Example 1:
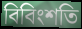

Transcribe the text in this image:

বিবিংশতি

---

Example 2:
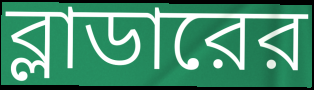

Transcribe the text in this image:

ব্লাডারের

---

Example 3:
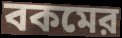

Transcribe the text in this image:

বকমের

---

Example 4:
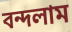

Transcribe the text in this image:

বন্দলাম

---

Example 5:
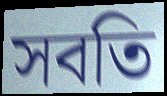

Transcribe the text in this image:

সবতি